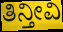
ತಿನ್ತೀವಿ